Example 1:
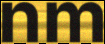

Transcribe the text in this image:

nm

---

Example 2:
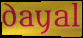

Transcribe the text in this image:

dayal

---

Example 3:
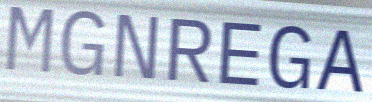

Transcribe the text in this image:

MGNREGA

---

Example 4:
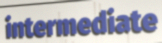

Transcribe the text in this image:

intermediate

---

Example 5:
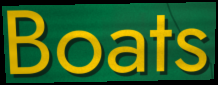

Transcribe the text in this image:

Boats